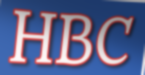
HBC